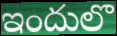
ఇందులొ